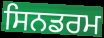
ਸਿਨਡਰਮ